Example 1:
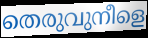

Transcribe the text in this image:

തെരുവുനീളെ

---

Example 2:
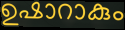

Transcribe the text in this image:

ഉഷാറാകും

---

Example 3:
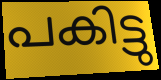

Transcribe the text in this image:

പകിട്ടു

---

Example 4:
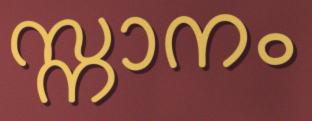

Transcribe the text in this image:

സ്നാനം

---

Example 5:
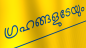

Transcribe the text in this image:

ഗ്രഹങ്ങളുടേയും